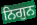
ਨਿਗੁਨ